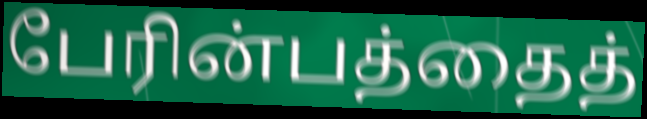
பேரின்பத்தைத்